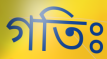
গতিঃ